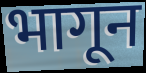
भागून